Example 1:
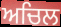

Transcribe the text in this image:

ਅਚਿਲ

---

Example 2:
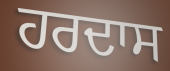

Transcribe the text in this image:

ਹਰਦਾਸ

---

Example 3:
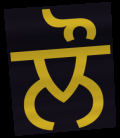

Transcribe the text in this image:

ਲੌ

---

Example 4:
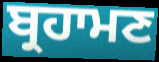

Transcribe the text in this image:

ਬ੍ਰਹਾਮਣ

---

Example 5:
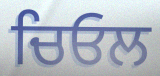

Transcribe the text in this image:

ਚਿਓਲ